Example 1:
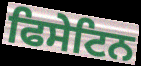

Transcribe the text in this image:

ਫਿਸੇਟਿਨ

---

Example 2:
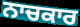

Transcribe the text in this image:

ਨਾਚਕਾਰ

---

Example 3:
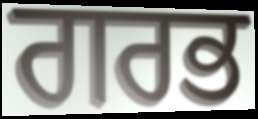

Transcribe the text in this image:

ਗਰਭ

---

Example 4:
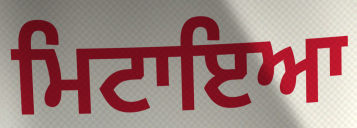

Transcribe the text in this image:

ਮਿਟਾਇਆ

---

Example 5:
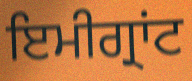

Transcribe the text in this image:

ਇਮੀਗ੍ਰਾਂਟ